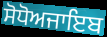
ਸੋਧੋਅਜਾਇਬ